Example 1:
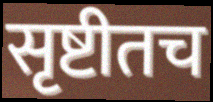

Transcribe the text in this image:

सृष्टीतच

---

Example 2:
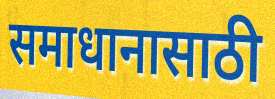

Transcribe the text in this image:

समाधानासाठी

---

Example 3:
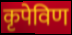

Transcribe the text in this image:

कृपेविण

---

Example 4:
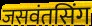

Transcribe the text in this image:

जसवंतसिंग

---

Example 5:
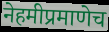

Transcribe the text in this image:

नेहमीप्रमाणेच